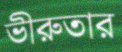
ভীরুতার